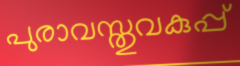
പുരാവസ്തുവകുപ്പ്